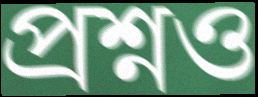
প্ৰশ্নও